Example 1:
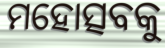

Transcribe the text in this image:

ମହୋତ୍ସବକୁ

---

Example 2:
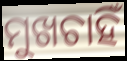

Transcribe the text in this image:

ମୁଖଚାହିଁ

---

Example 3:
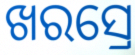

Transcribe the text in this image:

ଖରସ୍ରେ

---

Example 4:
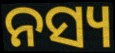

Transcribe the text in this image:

ନସ୍ୟ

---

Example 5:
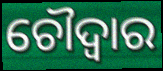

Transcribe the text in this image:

ଚୌଦ୍ଵାର